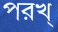
পরখ্